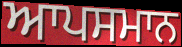
ਆਪਸਮਾਨ